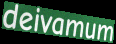
deivamum